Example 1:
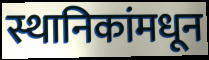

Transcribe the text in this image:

स्थानिकांमधून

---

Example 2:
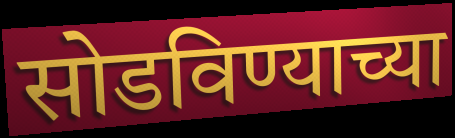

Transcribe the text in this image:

सोडविण्याच्या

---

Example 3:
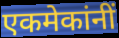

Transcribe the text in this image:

एकमेकांनीं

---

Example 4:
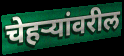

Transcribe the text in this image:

चेहऱ्यांवरील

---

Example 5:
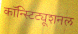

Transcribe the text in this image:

कॉन्स्टिट्यूशनल